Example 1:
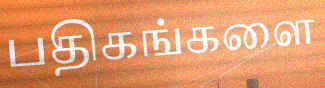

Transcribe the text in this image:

பதிகங்களை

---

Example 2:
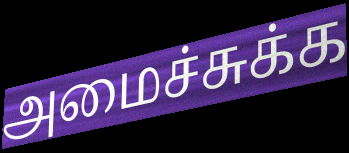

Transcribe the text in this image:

அமைச்சுக்க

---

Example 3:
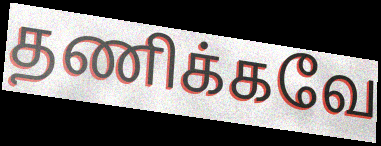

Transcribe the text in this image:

தணிக்கவே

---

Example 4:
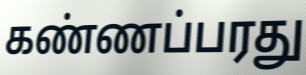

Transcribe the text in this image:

கண்ணப்பரது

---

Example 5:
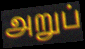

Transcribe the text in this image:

அறுப்